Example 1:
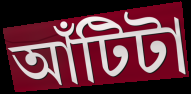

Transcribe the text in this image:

আঁটিটা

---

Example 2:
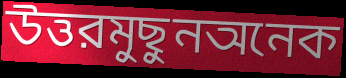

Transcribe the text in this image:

উত্তরমুছুনঅনেক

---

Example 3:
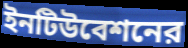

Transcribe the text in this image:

ইনটিউবেশনের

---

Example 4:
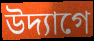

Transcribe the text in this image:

উদ্যাগে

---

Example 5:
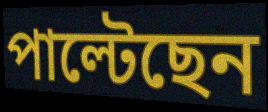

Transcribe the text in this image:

পাল্টেছেন